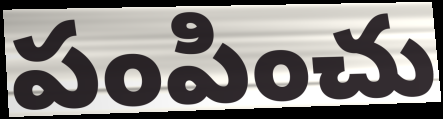
పంపించు